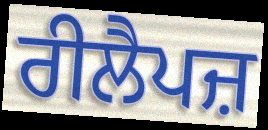
ਰੀਲੈਪਜ਼